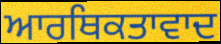
ਆਰਥਿਕਤਾਵਾਦ